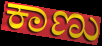
ಕಾಣು